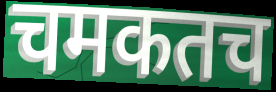
चमकतच